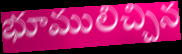
భూములిచ్చిన